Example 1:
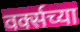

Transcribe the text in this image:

वर्क्‍सच्या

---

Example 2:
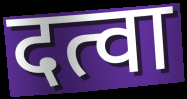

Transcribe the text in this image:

दत्वा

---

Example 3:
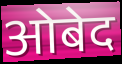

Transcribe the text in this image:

ओबेद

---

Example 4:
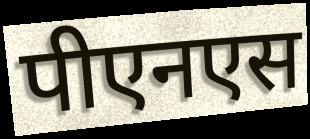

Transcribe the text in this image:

पीएनएस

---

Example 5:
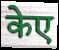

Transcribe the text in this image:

केए